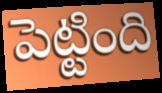
పెట్టింది